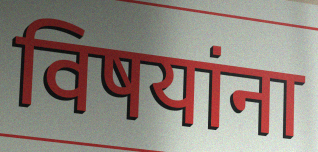
विषयांना